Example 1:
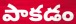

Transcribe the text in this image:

పాకడం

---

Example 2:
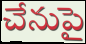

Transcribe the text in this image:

చేనుపై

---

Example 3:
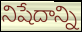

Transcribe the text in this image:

నిషేదాన్ని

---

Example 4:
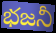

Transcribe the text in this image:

భజనీ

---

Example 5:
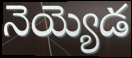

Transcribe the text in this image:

నెయ్యెడ